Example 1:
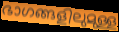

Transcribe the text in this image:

ഭാഗങ്ങളിലുമുള്ള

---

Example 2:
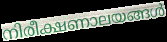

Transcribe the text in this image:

നിരീക്ഷണാലയങ്ങൾ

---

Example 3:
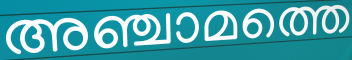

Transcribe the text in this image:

അഞ്ചാമത്തെ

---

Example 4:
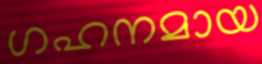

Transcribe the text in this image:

ഗഹനമായ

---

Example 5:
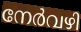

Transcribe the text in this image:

നേർവഴി